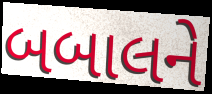
બબાલને